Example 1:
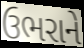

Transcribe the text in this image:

ઉભરાને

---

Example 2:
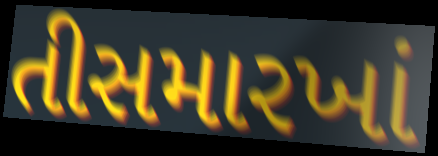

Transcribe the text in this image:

તીસમારખાં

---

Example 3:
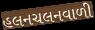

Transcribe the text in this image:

હલનચલનવાળી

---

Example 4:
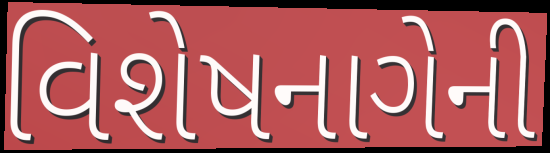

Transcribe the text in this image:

વિશેષનાગેની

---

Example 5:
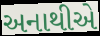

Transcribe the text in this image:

અનાથીએ